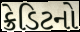
ક્રેડિટનો